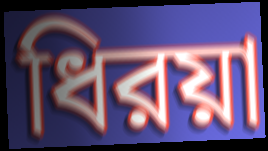
ধিরয়া